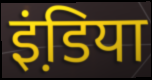
इ़ंडिया